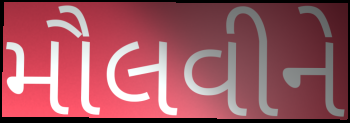
મૌલવીને